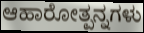
ಆಹಾರೋತ್ಪನ್ನಗಳು